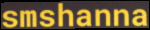
smshanna